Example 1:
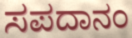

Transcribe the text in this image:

ಸಪದಾನಂ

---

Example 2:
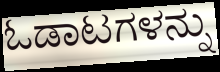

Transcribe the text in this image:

ಓಡಾಟಗಳನ್ನು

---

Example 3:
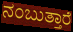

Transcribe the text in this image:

ನಂಬುತ್ತಾರೆ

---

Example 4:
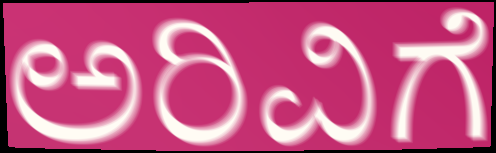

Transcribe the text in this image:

ಅರಿವಿಗೆ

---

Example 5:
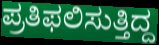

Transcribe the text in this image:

ಪ್ರತಿಫಲಿಸುತ್ತಿದ್ದ